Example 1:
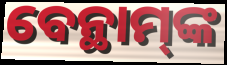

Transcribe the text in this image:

ବେନ୍ଥାମ୍‌ଙ୍କ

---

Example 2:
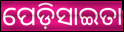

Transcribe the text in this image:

ପେଡ଼ିସାଇତା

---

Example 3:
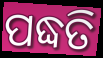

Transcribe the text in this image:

ପଦ୍ଧତି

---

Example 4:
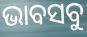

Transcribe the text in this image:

ଭାବସବୁ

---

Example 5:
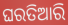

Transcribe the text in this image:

ଘରତିଆରି